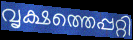
വൃക്ഷത്തെപ്പറ്റി